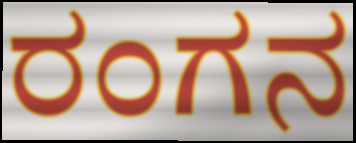
ರಂಗನ